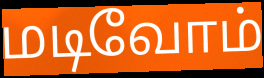
மடிவோம்